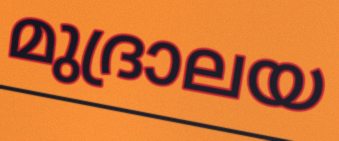
മുദ്രാലയ